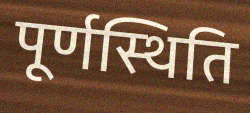
पूर्णस्थिति